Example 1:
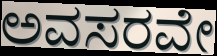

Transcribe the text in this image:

ಅವಸರವೇ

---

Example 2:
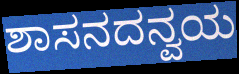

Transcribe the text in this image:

ಶಾಸನದನ್ವಯ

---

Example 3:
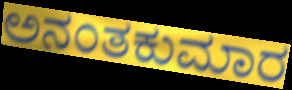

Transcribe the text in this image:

ಅನಂತಕುಮಾರ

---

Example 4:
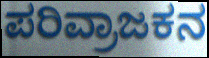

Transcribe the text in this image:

ಪರಿವ್ರಾಜಕನ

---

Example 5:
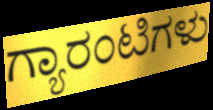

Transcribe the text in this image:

ಗ್ಯಾರಂಟಿಗಳು